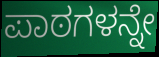
ಪಾಠಗಳನ್ನೇ